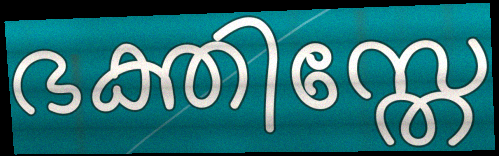
ഭക്തിസ്തേ